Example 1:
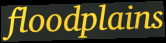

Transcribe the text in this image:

floodplains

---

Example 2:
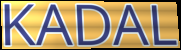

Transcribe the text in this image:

KADAL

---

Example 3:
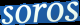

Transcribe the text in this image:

soros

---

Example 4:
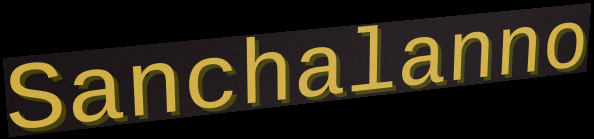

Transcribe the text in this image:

Sanchalanno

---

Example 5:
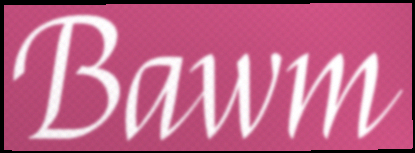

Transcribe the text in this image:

Bawm